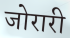
जोरारी